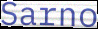
Sarno